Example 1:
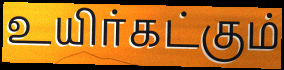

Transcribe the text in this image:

உயிர்கட்கும்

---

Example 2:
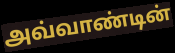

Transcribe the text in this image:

அவ்வாண்டின்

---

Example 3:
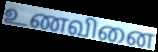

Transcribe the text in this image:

உணவினை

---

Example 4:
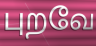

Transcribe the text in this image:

புறவே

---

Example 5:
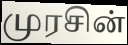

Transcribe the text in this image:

முரசின்